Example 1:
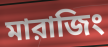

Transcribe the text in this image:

মারাজিং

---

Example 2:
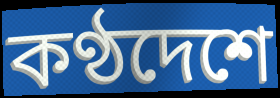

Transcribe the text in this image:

কণ্ঠদেশে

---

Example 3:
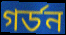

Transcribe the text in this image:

গর্ডন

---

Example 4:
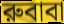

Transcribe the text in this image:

রুবাবা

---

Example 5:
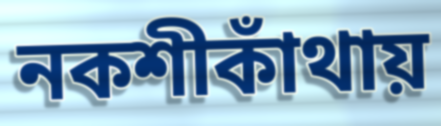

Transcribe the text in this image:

নকশীকাঁথায়